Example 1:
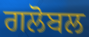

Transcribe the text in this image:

ਗਲੋਬਲ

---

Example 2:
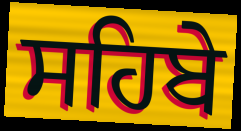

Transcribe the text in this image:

ਸਹਿਬੇ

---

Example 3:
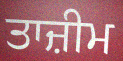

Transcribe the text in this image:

ਤਾਜ਼ੀਮ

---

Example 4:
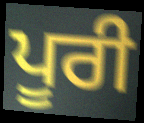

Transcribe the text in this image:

ਪੂਰੀ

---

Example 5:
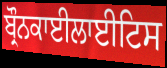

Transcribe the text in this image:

ਬ੍ਰੌਨਕਾਈਲਾਈਟਿਸ